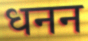
धनन